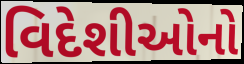
વિદેશીઓનો